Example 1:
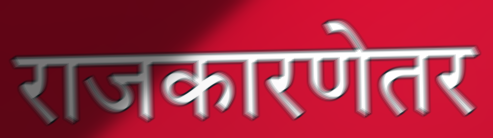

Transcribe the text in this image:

राजकारणेतर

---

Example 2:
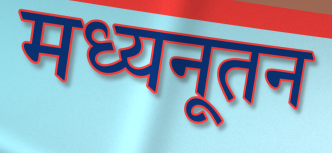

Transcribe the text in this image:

मध्यनूतन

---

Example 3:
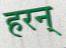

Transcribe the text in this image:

हरन्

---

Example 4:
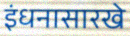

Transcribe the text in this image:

इंधनासारखे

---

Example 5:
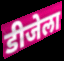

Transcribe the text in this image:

डीजेला